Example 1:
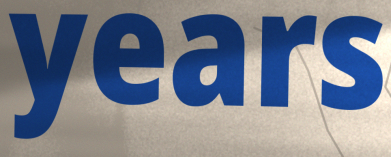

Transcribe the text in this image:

years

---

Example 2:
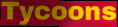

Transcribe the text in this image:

Tycoons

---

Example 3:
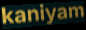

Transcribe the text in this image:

kaniyam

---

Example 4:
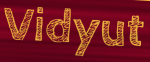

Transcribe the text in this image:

Vidyut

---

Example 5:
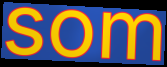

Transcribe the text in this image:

som